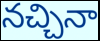
నచ్చినా